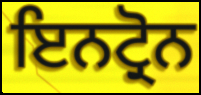
ਇਨਟ੍ਰੋਨ